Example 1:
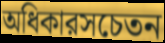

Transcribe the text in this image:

অধিকারসচেতন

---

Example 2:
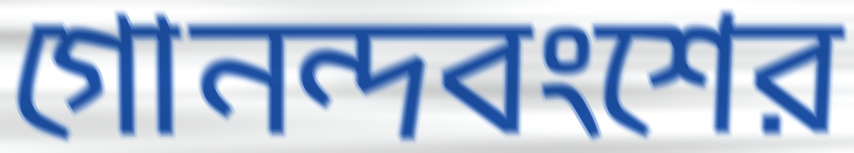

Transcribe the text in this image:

গোনন্দবংশের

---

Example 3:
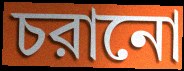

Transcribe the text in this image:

চরানো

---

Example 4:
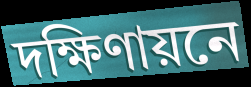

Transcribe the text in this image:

দক্ষিণায়নে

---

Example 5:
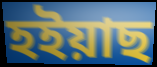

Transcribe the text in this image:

হইয়াছ